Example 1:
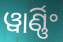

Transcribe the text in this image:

ୱାର୍ଣ୍ଣିଂ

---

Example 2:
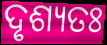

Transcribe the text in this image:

ଦୃଶ୍ୟତଃ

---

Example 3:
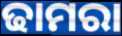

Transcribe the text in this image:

ଢାମରା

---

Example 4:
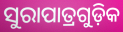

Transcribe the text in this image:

ସୁରାପାତ୍ରଗୁଡ଼ିକ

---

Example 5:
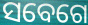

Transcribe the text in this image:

ସବେଗେ